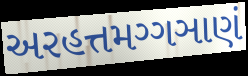
અરહત્તમગ્ગઞાણં